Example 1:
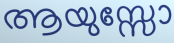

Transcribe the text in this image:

ആയുസ്സോ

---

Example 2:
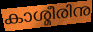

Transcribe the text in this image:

കാശ്മീരിനു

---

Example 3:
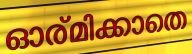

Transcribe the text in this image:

ഓര്മിക്കാതെ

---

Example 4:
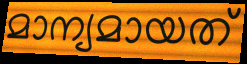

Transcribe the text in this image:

മാന്യമായത്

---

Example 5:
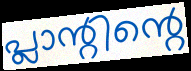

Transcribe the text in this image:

പ്ലാന്റിന്റെ